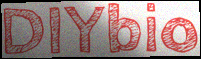
DIYbio